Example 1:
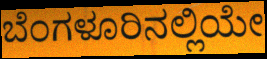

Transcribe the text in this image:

ಬೆಂಗಳೂರಿನಲ್ಲಿಯೇ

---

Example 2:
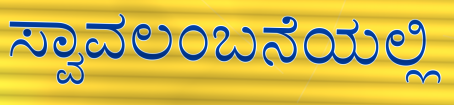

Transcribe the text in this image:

ಸ್ವಾವಲಂಬನೆಯಲ್ಲಿ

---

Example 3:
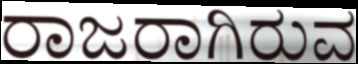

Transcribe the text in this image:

ರಾಜರಾಗಿರುವ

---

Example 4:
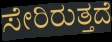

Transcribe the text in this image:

ಸೇರಿರುತ್ತದೆ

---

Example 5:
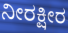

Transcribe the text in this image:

ನೀರಕ್ಷೀರ